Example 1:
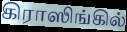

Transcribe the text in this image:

கிராஸிங்கில்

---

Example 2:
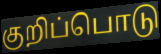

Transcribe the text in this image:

குறிப்பொடு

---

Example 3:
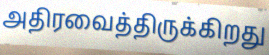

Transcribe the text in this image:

அதிரவைத்திருக்கிறது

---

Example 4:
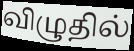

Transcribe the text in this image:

விழுதில்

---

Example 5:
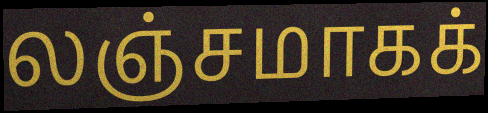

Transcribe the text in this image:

லஞ்சமாகக்